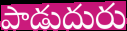
పాడుదురు